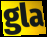
gla